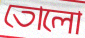
তোলো